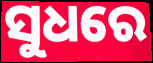
ସୁଧରେ